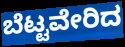
ಬೆಟ್ಟವೇರಿದ